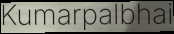
Kumarpalbhai